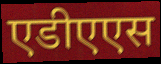
एडीएएस